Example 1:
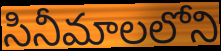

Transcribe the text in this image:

సినీమాలలోని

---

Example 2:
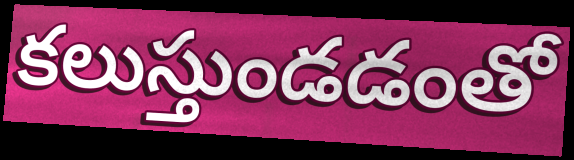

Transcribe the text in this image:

కలుస్తుండడంతో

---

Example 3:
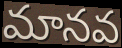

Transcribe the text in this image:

మానవ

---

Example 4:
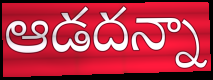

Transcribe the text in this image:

ఆడదన్నా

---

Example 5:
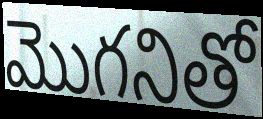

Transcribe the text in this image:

మొగనితో